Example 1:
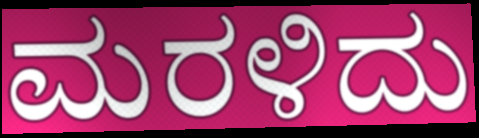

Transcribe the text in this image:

ಮರಳಿದು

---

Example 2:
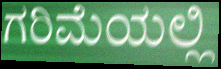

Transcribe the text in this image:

ಗರಿಮೆಯಲ್ಲಿ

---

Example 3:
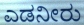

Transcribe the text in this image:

ಎಡನೀರು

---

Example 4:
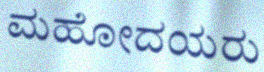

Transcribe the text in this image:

ಮಹೋದಯರು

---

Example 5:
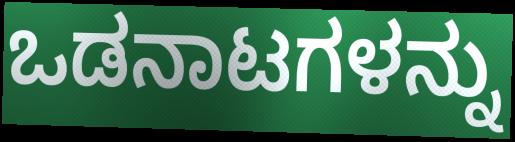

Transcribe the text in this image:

ಒಡನಾಟಗಳನ್ನು